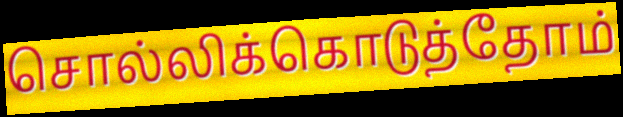
சொல்லிக்கொடுத்தோம்